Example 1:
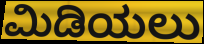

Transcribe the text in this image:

ಮಿಡಿಯಲು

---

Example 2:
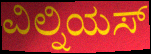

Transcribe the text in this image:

ವಿಲ್ನಿಯಸ್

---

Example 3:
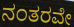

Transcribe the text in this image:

ನಂತರವೇ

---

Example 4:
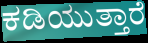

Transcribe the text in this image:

ಕಡಿಯುತ್ತಾರೆ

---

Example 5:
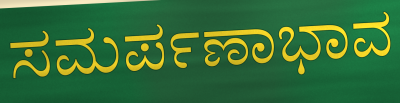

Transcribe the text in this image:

ಸಮರ್ಪಣಾಭಾವ